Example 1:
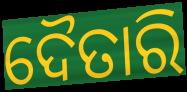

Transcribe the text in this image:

ଦୈତାରି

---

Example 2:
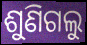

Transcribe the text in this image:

ଶୁଣିଗଲୁ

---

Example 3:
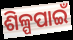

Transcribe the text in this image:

ଶିଳ୍ପପାଇଁ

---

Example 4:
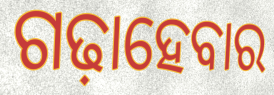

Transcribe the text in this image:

ଗଢ଼ାହେବାର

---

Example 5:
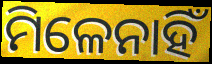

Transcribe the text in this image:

ମିଳେନାହିଁ